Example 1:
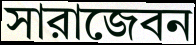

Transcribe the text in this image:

সারাজেবন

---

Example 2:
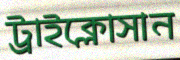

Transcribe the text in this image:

ট্রাইক্লোসান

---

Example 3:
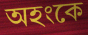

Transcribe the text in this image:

অহংকে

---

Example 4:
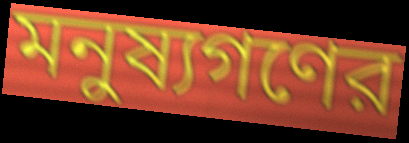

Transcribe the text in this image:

মনুষ্যগণের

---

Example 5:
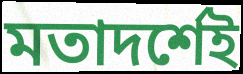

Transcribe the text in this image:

মতাদর্শেই